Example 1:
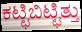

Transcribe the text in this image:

ಕಟ್ಟಿಬಿಟ್ಟಿತ್ತು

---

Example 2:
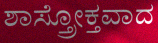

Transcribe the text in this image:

ಶಾಸ್ತ್ರೋಕ್ತವಾದ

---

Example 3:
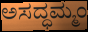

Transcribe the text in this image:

ಅಸದ್ಧಮ್ಮಂ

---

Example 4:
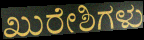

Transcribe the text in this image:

ಖುರೇಶಿಗಳು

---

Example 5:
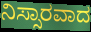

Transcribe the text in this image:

ನಿಸ್ಸಾರವಾದ